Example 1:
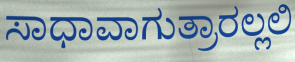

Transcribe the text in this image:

ಸಾಧಾವಾಗುತ್ರಾರಲ್ಲಲಿ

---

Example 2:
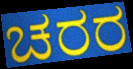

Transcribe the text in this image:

ಚರರ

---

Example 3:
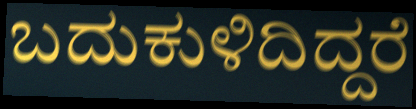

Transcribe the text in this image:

ಬದುಕುಳಿದಿದ್ದರೆ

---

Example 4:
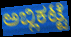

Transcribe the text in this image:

ಅಬ್ಲಿಕಟ್ಟೆ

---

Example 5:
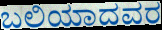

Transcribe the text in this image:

ಬಲಿಯಾದವರ